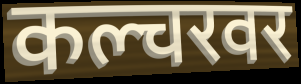
कल्चरवर